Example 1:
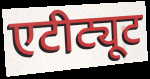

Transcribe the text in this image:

एटीट्यूट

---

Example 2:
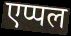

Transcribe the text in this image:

एप्पल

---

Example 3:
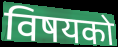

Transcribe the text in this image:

विषयको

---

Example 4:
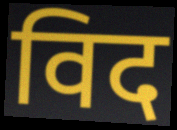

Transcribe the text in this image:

विद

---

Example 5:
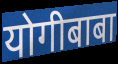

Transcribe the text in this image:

योगीबाबा